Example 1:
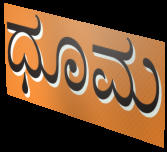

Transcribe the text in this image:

ಧೂಮ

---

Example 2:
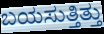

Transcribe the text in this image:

ಬಯಸುತ್ತಿತ್ತು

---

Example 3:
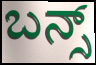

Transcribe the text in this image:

ಬನ್ಸ್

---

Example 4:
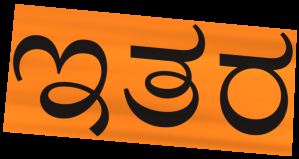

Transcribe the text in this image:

ಇತರ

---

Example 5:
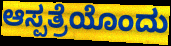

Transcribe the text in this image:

ಆಸ್ಪತ್ರೆಯೊಂದು